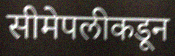
सीमेपलीकडून